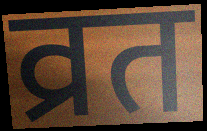
व्रत